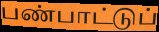
பண்பாட்டுப்